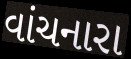
વાંચનારા